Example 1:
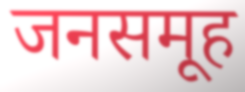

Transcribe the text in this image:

जनसमूह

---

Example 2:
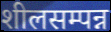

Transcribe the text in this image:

शीलसम्पन्न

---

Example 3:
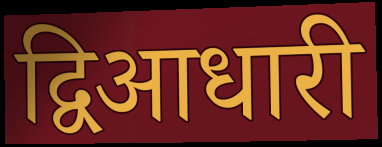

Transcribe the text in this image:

द्विआधारी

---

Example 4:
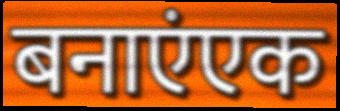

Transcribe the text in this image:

बनाएंएक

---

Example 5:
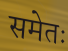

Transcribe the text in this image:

समेतः